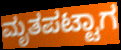
ಮೃತಪಟ್ಟಾಗ